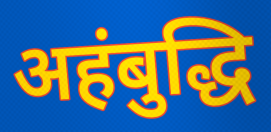
अहंबुद्धि